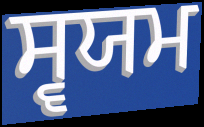
ਸ੍ਵਯਮ